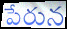
పేరున